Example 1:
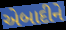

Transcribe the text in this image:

એબાદીને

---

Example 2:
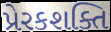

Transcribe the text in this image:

પ્રેરકશક્તિ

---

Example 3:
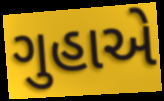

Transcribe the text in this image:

ગુહાએ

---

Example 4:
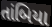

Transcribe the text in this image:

તાંબિયા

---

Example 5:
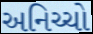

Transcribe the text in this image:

અનિચ્ચો